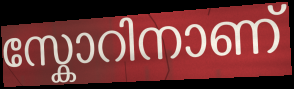
സ്കോറിനാണ്